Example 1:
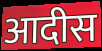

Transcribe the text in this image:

आदीस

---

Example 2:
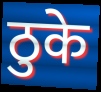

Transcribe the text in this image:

ठुके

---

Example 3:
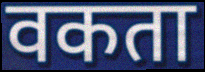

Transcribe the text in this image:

वकता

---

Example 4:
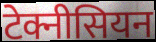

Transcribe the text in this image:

टेक्नीसियन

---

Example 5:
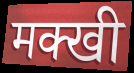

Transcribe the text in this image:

मक्खी